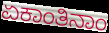
ಏಕಾಂತಿನಾಂ